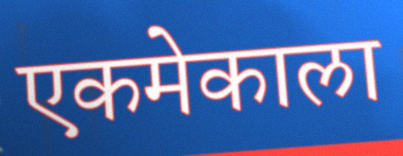
एकमेकाला